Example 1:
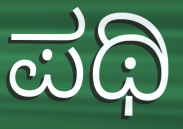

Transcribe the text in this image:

ಪಥಿ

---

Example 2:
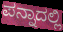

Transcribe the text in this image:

ಪನ್ನಾದಲ್ಲಿ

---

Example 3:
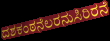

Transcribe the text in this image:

ದಶಕಂಠನೆಲರನುಸಿರಿರನೆ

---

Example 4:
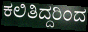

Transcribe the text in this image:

ಕಲಿತಿದ್ದರಿಂದ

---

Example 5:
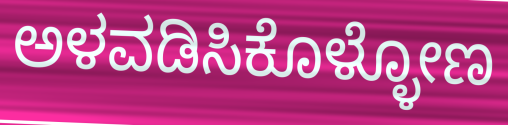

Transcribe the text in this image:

ಅಳವಡಿಸಿಕೊಳ್ಳೋಣ